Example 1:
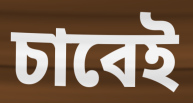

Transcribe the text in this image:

চাবেই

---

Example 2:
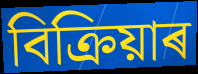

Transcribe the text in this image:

বিক্ৰিয়াৰ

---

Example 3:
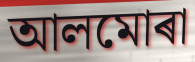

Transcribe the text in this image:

আলমোৰা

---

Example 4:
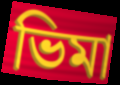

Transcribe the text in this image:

ভিমা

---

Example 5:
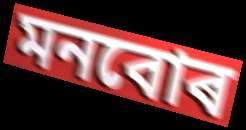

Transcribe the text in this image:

মনবোৰ